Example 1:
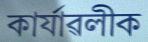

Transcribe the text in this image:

কাৰ্যাৱলীক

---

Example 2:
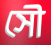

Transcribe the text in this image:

সৌ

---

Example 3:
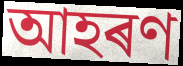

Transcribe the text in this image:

আহৰণ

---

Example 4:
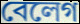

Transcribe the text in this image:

বেলেগ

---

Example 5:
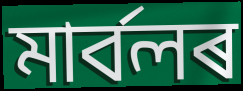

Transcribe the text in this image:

মাৰ্বলৰ